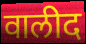
वालीद